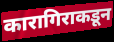
कारागिराकडून